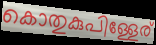
കൊതുകുപിള്ളേര്